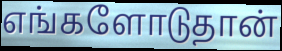
எங்களோடுதான்